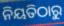
ନିୟତିଠାରୁ